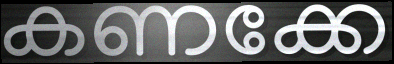
കണക്കേ